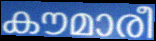
കൗമാരീ